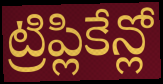
ట్రిప్లికేన్లో